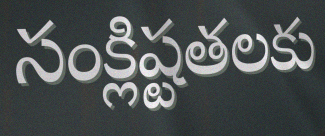
సంక్లిష్టతలకు